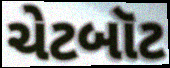
ચેટબૉટ